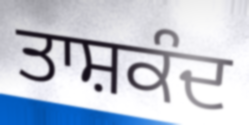
ਤਾਸ਼ਕੰਦ